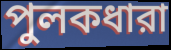
পুলকধারা